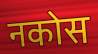
नकोस